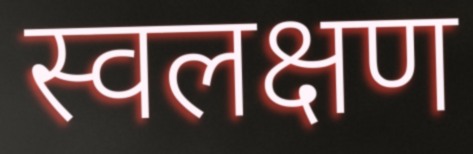
स्वलक्षण